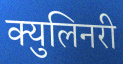
क्युलिनरी